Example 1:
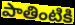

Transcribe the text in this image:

పాతింటికి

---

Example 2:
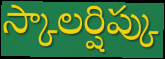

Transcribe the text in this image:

స్కాలర్షిప్కు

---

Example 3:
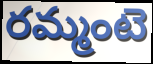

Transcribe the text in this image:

రమ్మంటె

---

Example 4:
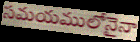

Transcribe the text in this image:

సమయములోనైనా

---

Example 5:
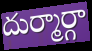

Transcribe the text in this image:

దుర్మార్గా